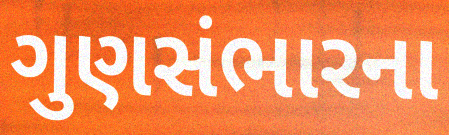
ગુણસંભારના